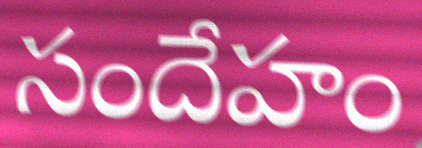
సందేహం